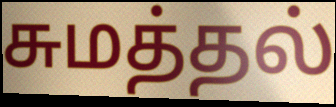
சுமத்தல்